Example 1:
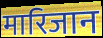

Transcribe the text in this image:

मारिजान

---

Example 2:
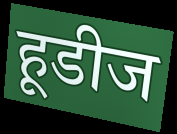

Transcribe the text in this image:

हूडीज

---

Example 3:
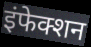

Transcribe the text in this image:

इंफेक्शन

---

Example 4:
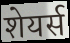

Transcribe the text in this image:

शेयर्स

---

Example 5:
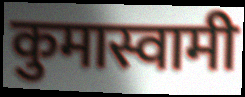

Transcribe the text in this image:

कुमास्वामी